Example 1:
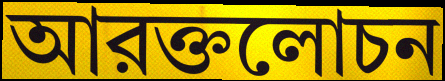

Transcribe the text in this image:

আরক্তলোচন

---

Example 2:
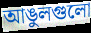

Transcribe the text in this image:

আঙুলগুলো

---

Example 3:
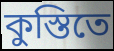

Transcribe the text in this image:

কুস্তিতে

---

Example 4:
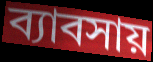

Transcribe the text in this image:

ব্যাবসায়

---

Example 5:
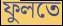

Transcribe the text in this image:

ফুলতে